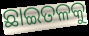
ଛାଇତଳକୁ